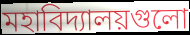
মহাবিদ্যালয়গুলো